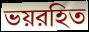
ভয়রহিত